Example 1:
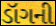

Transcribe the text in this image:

ડૉગની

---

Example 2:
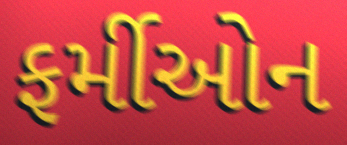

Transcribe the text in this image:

ફર્મીઓન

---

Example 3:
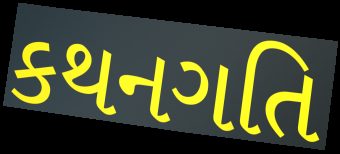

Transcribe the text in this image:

કથનગતિ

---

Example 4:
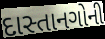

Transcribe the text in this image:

દાસ્તાનગોની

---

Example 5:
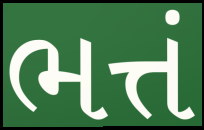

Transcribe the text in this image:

ભત્તં